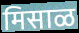
मिसाळ